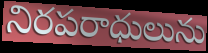
నిరపరాధులును